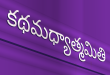
కథమధ్యాత్మమితి